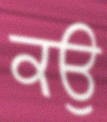
ਕਉੁ